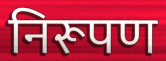
निरूपण